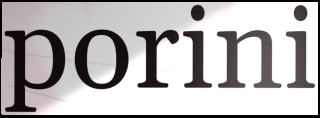
porini